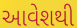
આવેશથી